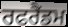
ਰਫਰੈਂਡਮ